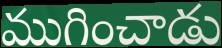
ముగించాడు